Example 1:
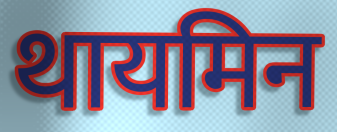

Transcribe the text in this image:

थायमिन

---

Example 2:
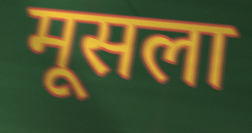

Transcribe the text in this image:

मूसला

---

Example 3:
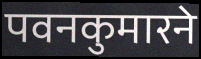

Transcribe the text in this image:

पवनकुमारने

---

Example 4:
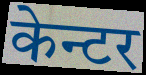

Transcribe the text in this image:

केन्टर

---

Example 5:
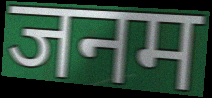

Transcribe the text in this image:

जनम